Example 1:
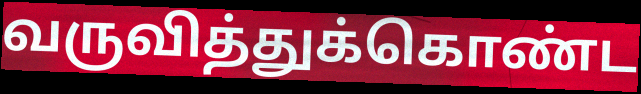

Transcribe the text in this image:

வருவித்துக்கொண்ட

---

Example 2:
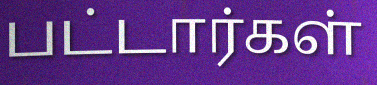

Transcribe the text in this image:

பட்டார்கள்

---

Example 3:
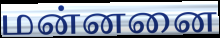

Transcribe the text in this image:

மன்னனை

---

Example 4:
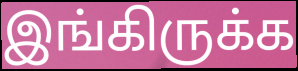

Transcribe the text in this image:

இங்கிருக்க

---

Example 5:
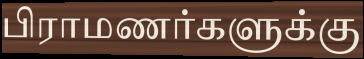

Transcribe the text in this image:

பிராமணர்களுக்கு